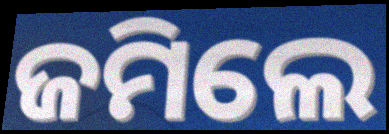
ଜମିଲେ